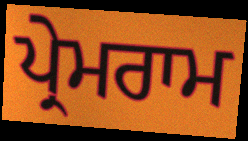
ਪ੍ਰੇਮਰਾਮ